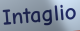
Intaglio